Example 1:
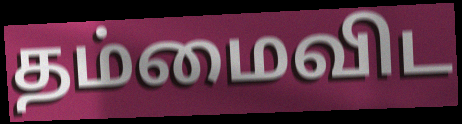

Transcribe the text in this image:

தம்மைவிட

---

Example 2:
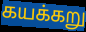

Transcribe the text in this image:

கயக்கறு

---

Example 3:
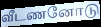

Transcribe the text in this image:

வீடணனோடு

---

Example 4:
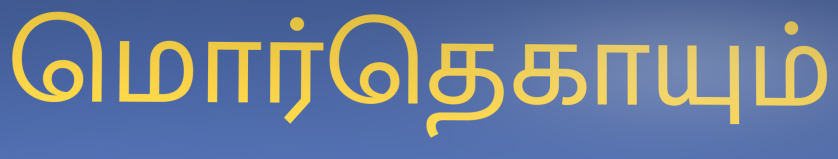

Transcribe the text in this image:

மொர்தெகாயும்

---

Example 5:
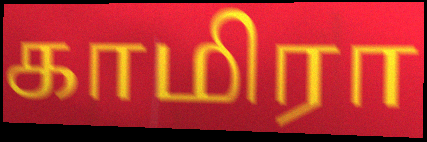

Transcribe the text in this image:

காமிரா